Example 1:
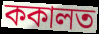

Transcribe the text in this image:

ককালত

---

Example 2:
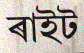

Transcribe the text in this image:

ৰাইট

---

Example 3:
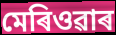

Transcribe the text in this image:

মেৰিওৱাৰ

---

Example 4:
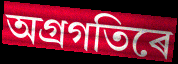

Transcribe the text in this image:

অগ্ৰগতিৰে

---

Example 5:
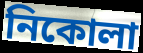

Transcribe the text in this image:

নিকোলা